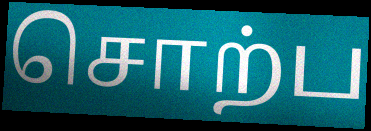
சொற்ப